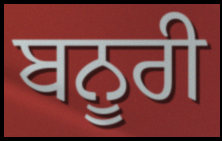
ਬਨੂਰੀ